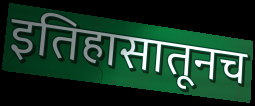
इतिहासातूनच